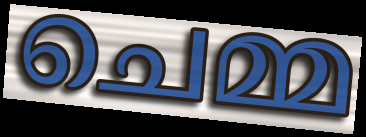
ചെമ്മ